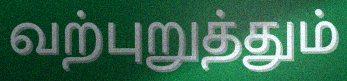
வற்புறுத்தும்